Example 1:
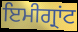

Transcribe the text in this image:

ਇਮੀਗ੍ਰਾਂਟ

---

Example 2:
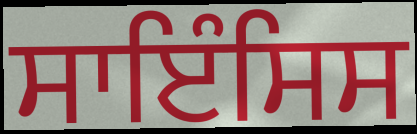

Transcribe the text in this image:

ਸਾਇੰਸਿਸ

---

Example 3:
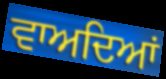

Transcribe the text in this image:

ਵਾਅਦਿਆਂ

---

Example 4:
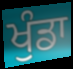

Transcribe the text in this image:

ਖੁੰਡਾ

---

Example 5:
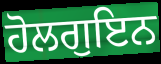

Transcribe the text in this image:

ਹੋਲਗੁਇਨ